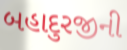
બહાદુરજીની